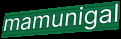
mamunigal